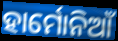
ହାର୍ମୋନିଆଁ